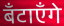
बँटाएँगे